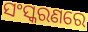
ସଂସ୍କରଣରେ